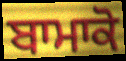
ਬਾਮਾਕੋ